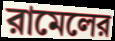
রামেলের